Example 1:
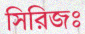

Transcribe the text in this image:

সিরিজঃ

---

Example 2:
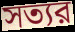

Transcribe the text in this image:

সত্যর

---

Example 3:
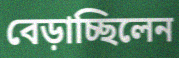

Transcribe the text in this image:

বেড়াচ্ছিলেন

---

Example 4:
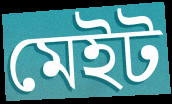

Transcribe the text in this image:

মেইট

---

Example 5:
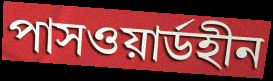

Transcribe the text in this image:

পাসওয়ার্ডহীন